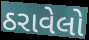
ઠરાવેલો